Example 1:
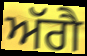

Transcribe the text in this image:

ਅੱਗੈ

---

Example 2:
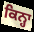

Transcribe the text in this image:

ਕਿਨ੍ਹਾ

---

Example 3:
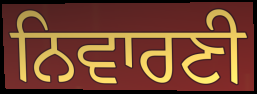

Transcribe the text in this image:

ਨਿਵਾਰਣੀ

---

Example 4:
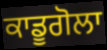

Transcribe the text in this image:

ਕਾਡੂਗੋਲਾ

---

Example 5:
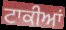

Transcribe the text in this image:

ਟਾਕੀਆਂ